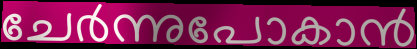
ചേർന്നുപോകാൻ